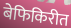
बेफिकिरीत